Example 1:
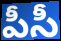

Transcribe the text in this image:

పీసీ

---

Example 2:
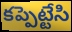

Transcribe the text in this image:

కప్పెట్టేసి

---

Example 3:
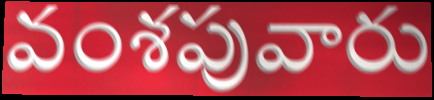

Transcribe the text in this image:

వంశపువారు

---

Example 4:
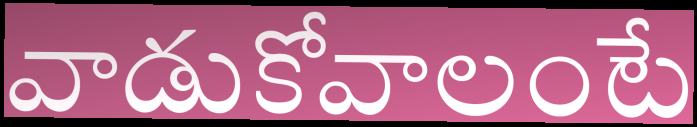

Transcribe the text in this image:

వాడుకోవాలంటే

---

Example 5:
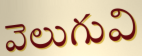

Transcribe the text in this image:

వెలుగువి